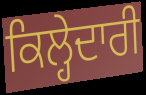
ਕਿਲ੍ਹੇਦਾਰੀ